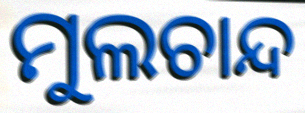
ମୁଲଚାନ୍ଦ